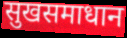
सुखसमाधान